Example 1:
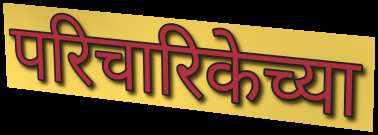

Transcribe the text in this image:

परिचारिकेच्या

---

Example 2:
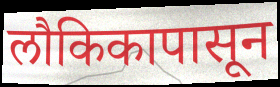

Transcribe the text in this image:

लौकिकापासून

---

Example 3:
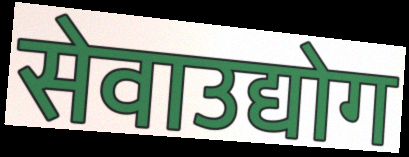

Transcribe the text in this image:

सेवाउद्योग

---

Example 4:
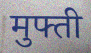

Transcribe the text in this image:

मुफ्ती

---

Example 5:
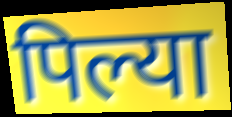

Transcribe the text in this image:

पिल्या